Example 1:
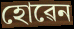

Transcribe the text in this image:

হোৱেন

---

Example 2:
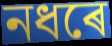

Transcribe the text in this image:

নধৰে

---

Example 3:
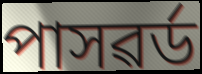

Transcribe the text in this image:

পাসৱৰ্ড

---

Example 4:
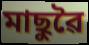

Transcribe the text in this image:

মাছুৱৈ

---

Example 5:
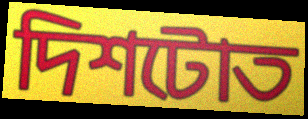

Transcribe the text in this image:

দিশটোত